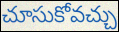
చూసుకోవచ్చు